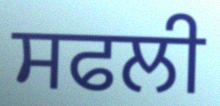
ਸਫਲੀ